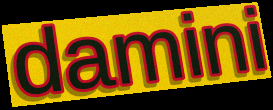
damini